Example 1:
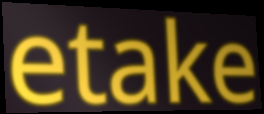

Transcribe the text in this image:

etake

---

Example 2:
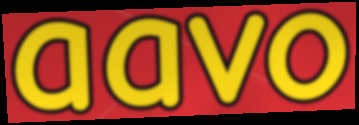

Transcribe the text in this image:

aavo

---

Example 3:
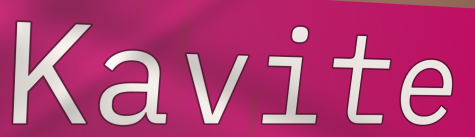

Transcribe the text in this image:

Kavite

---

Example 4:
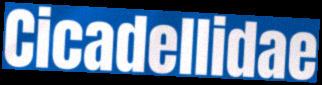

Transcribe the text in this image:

Cicadellidae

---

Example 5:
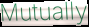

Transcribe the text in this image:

Mutually